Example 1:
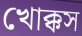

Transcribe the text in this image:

খোক্কস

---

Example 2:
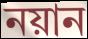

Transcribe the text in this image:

নয়ান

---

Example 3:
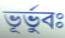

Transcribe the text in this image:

ভূর্ভুবঃ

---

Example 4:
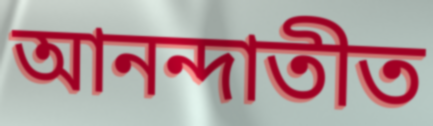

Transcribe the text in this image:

আনন্দাতীত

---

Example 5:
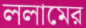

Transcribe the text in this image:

ললামের